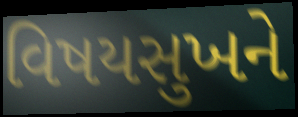
વિષયસુખને